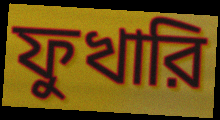
ফুখারি